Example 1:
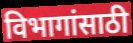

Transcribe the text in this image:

विभागांसाठी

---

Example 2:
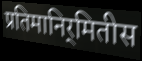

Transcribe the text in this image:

प्रतिमानिर्मितीस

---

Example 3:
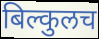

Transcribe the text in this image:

बिल्कुलच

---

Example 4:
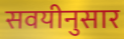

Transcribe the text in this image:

सवयीनुसार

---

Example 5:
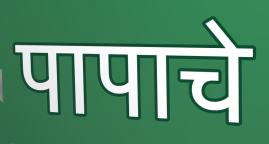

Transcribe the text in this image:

पापाचे